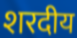
शरदीय